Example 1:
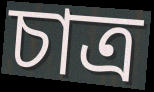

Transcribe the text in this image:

চাত্র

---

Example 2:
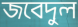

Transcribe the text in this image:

জবেদুল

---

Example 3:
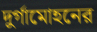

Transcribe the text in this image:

দুর্গামোহনের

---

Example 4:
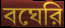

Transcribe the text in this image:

বঘেরি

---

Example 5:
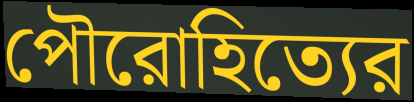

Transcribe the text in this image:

পৌরোহিত্যের